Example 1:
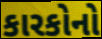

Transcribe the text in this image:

કારકોનો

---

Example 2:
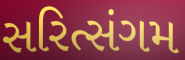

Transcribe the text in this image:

સરિત્સંગમ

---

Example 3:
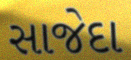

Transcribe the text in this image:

સાજેદા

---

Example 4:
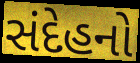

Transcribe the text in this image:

સંદેહનો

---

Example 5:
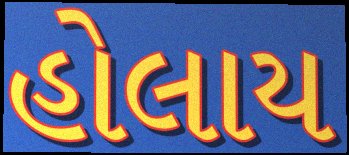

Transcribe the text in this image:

હોલાય